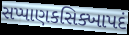
સપ્પાણકસિક્ખાપદં